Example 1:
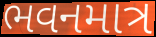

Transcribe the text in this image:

ભવનમાત્ર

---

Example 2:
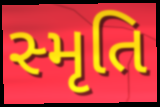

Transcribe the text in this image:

સ્મૃતિ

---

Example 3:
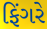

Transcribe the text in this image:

ફિંગરે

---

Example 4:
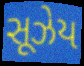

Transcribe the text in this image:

સૂઝેય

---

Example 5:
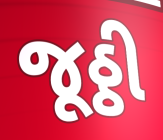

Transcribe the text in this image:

જૂઠ્ઠી